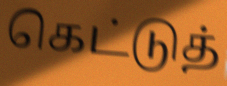
கெட்டுத்